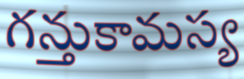
గన్తుకామస్య